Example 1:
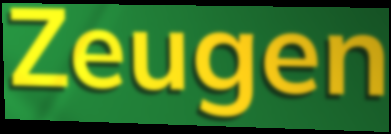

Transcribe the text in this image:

Zeugen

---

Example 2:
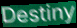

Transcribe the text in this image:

Destiny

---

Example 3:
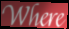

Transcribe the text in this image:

Where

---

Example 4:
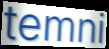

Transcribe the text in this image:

temni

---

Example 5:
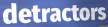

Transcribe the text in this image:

detractors